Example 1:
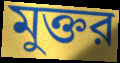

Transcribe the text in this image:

মুক্তর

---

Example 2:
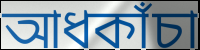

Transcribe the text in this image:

আধকাঁচা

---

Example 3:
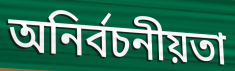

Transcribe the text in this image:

অনির্বচনীয়তা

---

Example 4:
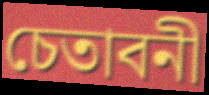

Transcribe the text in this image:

চেতাবনী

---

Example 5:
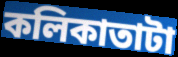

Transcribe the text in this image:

কলিকাতাটা